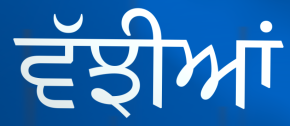
ਵੱਝੀਆਂ